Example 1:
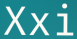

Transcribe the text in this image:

Xxi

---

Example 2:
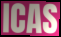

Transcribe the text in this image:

ICAS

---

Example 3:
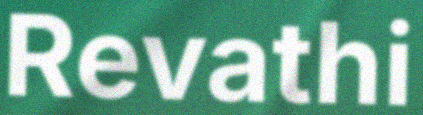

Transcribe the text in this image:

Revathi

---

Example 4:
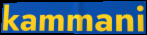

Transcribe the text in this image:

kammani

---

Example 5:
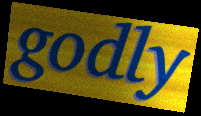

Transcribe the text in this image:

godly